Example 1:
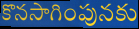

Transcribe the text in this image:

కొనసాగింపునకు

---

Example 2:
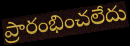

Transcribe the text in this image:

ప్రారంభించలేదు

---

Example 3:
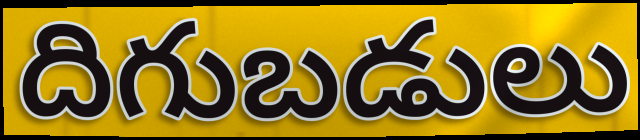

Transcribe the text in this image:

దిగుబడులు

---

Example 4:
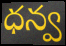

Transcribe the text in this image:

ధన్వ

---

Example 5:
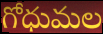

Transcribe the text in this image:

గోధుమల